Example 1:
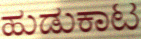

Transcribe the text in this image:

ಹುಡುಕಾಟ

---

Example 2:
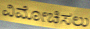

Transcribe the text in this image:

ವಿಮೋಚಿಸಲು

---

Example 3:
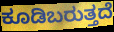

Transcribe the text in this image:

ಕೂಡಿಬರುತ್ತದೆ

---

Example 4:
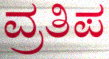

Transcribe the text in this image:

ವ್ರತಿಪ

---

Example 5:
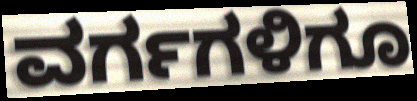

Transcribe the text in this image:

ವರ್ಗಗಳಿಗೂ